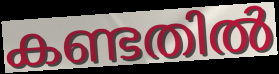
കണ്ടതിൽ